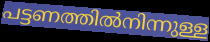
പട്ടണത്തിൽനിന്നുള്ള